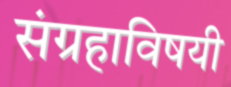
संग्रहाविषयी